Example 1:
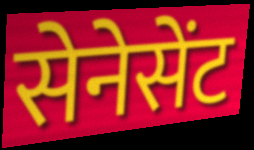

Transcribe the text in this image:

सेनेसेंट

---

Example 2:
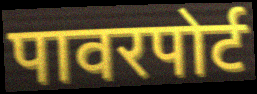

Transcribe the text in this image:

पावरपोर्ट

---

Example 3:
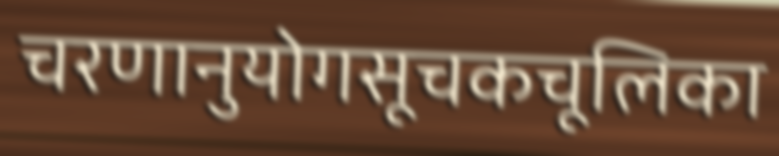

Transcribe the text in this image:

चरणानुयोगसूचकचूलिका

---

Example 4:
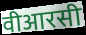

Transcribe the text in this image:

वीआरसी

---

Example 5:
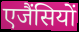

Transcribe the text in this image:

एजैंसियों